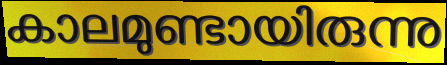
കാലമുണ്ടായിരുന്നു